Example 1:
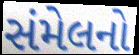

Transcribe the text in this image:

સંમેલનો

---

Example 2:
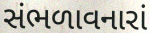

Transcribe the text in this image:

સંભળાવનારાં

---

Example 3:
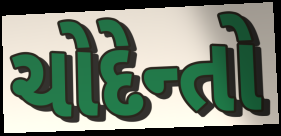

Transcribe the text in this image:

ચોદેન્તો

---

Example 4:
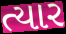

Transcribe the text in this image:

ત્‍યાર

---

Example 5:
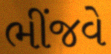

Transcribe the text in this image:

ભીંજવે